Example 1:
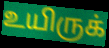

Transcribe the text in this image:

உயிருக்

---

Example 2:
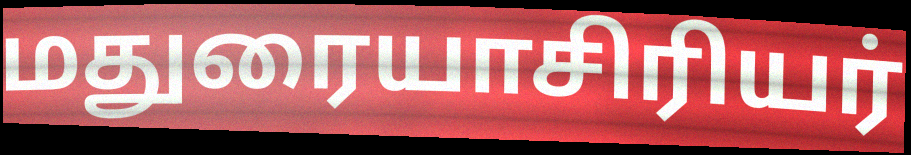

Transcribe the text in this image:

மதுரையாசிரியர்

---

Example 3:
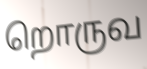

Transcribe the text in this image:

றொருவ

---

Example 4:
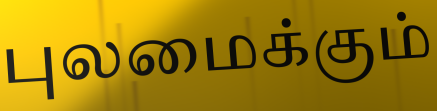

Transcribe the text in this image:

புலமைக்கும்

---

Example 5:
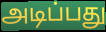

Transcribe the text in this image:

அடிப்பது